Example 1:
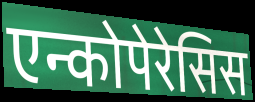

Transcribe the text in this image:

एन्कोपेरेसिस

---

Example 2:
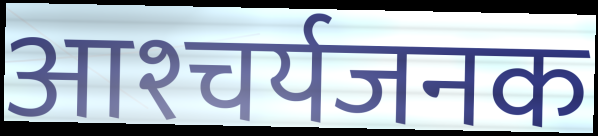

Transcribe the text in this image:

आश्चर्यजनक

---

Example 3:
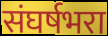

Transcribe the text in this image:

संघर्षभरा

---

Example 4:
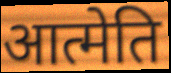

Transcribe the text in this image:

आत्मेति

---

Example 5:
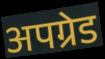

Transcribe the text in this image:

अपग्रेड